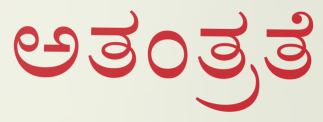
ಅತಂತ್ರತೆ